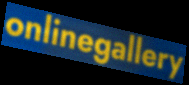
onlinegallery